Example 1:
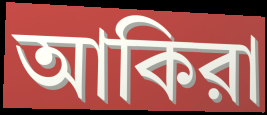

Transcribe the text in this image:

আকিরা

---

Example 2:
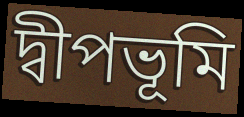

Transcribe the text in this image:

দ্বীপভূমি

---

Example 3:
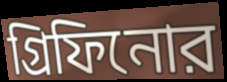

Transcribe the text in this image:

গ্রিফিনোর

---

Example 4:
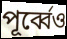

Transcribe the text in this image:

পূর্ব্বেও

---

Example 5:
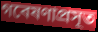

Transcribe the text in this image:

গবেষণাপ্রসূত